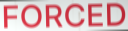
FORCED